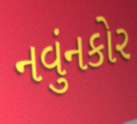
નવુંનકોર